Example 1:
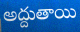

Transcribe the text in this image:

అద్దుతాయి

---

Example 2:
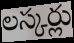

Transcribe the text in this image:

లస్కర్లు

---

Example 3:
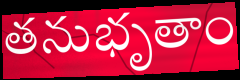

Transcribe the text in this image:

తనుభృతాం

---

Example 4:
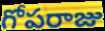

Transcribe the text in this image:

గోపరాజు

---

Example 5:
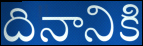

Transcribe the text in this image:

దినానికి